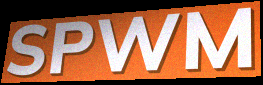
SPWM